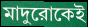
মাদুরোকেই